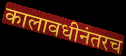
कालावधीनंतरच